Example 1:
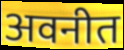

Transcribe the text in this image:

अवनीत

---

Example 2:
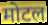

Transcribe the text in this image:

मोटल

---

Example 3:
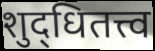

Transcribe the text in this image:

शुद्धितत्त्व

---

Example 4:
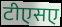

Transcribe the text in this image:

टीएसए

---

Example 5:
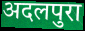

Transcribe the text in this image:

अदलपुरा